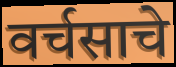
वर्चसाचे